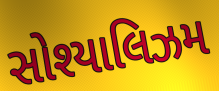
સોશ્યાલિઝમ